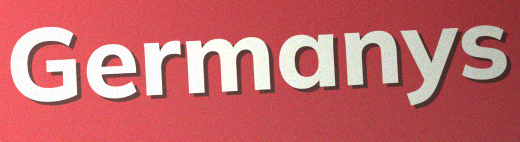
Germanys